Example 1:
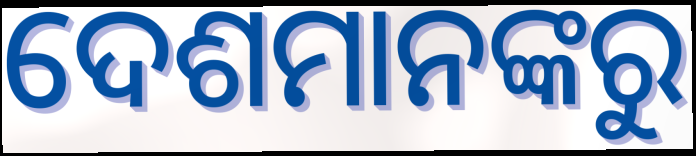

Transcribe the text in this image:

ଦେଶମାନଙ୍କରୁ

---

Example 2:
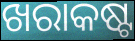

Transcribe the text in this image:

ଖରାକଷ୍ଟ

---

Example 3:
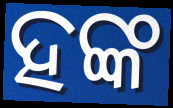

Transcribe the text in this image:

ହଙ୍କ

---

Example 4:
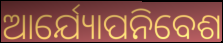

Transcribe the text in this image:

ଆର୍ଯ୍ୟୋପନିବେଶ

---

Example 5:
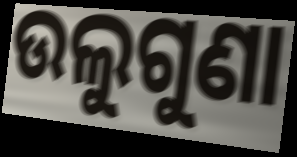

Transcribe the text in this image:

ଉଲୁଗୁଣା